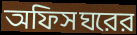
অফিসঘরের